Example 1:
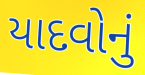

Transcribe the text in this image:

યાદવોનું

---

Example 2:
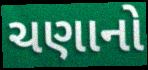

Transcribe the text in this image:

ચણાનો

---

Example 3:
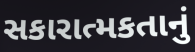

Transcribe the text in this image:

સકારાત્મકતાનું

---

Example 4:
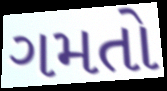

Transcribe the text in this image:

ગમતો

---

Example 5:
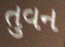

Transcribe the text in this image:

તુવન